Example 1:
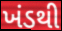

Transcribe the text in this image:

ખંડથી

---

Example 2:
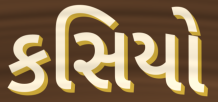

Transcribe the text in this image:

કસિયો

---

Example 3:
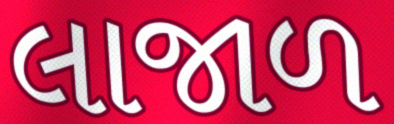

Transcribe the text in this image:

લાજાળ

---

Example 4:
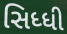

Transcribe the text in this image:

સિધ્ધી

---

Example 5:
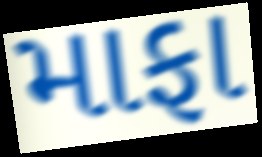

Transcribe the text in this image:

માફા